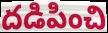
దడిపించి